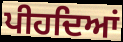
ਪੀਹਦਿਆਂ